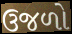
ઉજળો